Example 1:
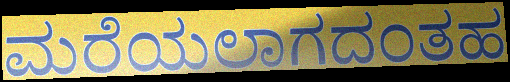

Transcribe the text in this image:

ಮರೆಯಲಾಗದಂತಹ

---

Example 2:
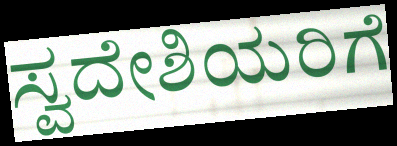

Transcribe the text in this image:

ಸ್ವದೇಶಿಯರಿಗೆ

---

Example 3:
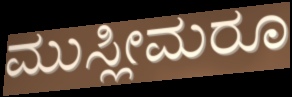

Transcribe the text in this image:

ಮುಸ್ಲೀಮರೂ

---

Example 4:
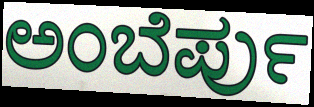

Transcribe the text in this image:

ಅಂಬೆರ್ಪು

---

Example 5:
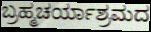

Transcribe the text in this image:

ಬ್ರಹ್ಮಚರ್ಯಾಶ್ರಮದ